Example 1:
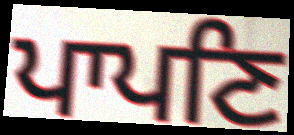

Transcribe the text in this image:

ਪਾਪਣਿ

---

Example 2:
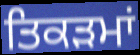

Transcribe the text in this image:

ਤਿਕੜਮਾਂ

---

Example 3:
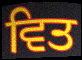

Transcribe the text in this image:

ਵਿਤ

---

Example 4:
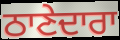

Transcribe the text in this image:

ਠਾਣੇਦਾਰਾ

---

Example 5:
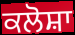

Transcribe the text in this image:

ਕਲੋਸ਼ਾ